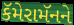
કૅમેરામૅનને